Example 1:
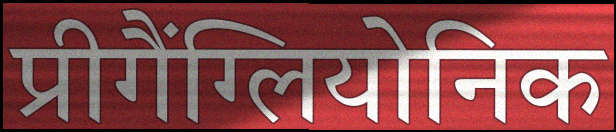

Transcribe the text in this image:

प्रीगैंग्लियोनिक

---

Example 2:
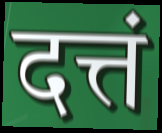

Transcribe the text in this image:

दत्तं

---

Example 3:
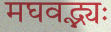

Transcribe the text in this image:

मघवद्भ्यः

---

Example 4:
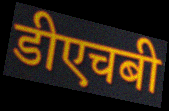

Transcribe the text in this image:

डीएचबी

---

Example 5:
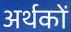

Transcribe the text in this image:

अर्थकों